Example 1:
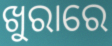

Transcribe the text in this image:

ଖୁରାରେ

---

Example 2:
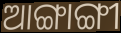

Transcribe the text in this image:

ଆଙ୍ଗାଙ୍ଗୀ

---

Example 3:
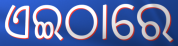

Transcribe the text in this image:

ଏଇଠାରେ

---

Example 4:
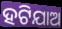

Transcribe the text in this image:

ହଟିଯାଅ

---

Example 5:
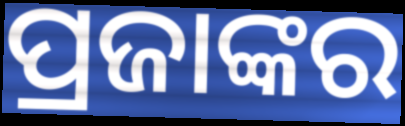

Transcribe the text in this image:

ପ୍ରଜାଙ୍କର